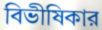
বিভীষিকার